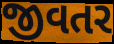
જીવતર